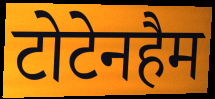
टोटेनहैम